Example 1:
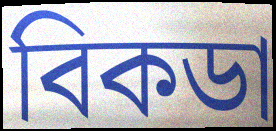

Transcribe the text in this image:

বিকডা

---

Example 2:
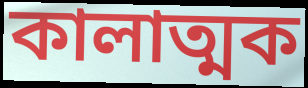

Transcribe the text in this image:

কালাত্মক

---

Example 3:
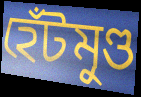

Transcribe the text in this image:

হেঁটমুণ্ড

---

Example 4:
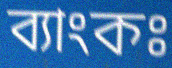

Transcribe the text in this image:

ব্যাংকঃ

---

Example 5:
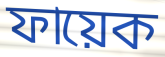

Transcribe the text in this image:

ফায়েক